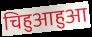
चिहुआहुआ